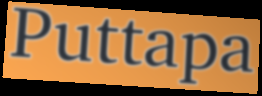
Puttapa